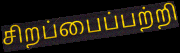
சிறப்பைப்பற்றி